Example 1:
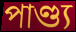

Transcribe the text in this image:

পাণ্ড্য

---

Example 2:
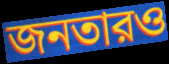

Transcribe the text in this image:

জনতারও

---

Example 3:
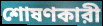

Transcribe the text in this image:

শোষণকারী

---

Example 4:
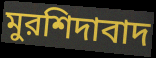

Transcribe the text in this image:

মুরশিদাবাদ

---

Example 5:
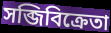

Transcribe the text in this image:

সব্জিবিক্রেতা